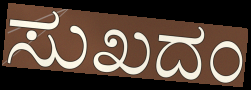
ಸುಖದಂ